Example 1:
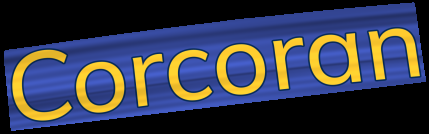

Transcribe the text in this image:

Corcoran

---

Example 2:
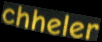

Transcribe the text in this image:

chheler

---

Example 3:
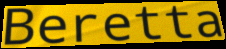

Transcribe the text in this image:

Beretta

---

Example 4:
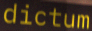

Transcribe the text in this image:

dictum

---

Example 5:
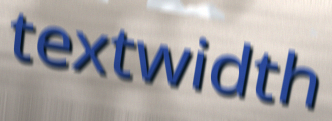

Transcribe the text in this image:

textwidth